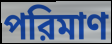
পরিমাণ